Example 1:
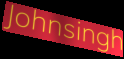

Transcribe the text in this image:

Johnsingh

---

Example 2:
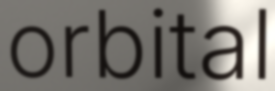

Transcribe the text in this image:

orbital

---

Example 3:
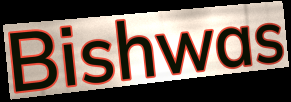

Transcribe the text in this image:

Bishwas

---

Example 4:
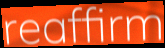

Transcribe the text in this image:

reaffirm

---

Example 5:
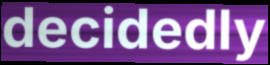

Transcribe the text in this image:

decidedly